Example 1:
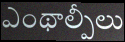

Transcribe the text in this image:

ఎంథాల్పీలు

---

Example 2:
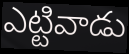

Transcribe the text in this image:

ఎట్టివాడు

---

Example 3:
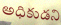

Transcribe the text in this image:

అధికుడని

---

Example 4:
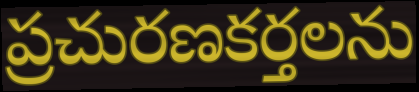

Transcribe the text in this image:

ప్రచురణకర్తలను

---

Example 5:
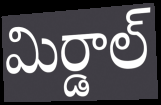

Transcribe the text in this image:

మిర్డాల్